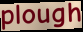
plough